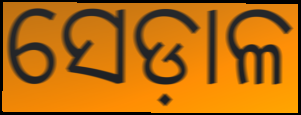
ସେଡ଼ାଳ